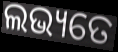
ଲଭ୍ୟତେ